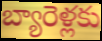
బ్యారెళ్లకు